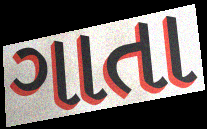
ગાતા